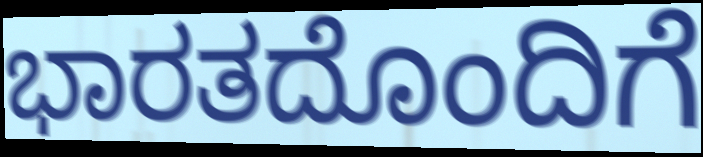
ಭಾರತದೊಂದಿಗೆ